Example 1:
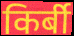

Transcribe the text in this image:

किर्बी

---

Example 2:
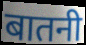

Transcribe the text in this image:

बातनी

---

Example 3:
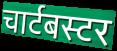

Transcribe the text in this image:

चार्टबस्टर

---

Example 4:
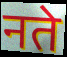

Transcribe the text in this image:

नते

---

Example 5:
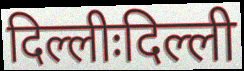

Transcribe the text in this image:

दिल्लीःदिल्ली